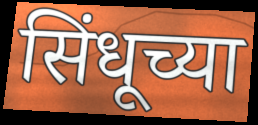
सिंधूच्या